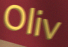
Oliv